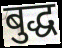
बुद्ध